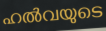
ഹൽവയുടെ